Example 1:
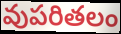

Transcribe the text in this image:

వుపరితలం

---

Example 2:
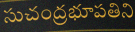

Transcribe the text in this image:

సుచంద్రభూపతిని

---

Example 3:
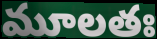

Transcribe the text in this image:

మూలతః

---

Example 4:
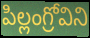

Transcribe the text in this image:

పిల్లంగ్రోవిని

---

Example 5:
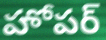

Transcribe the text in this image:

హోపర్